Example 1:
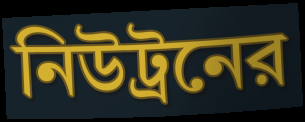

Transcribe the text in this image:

নিউট্রনের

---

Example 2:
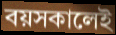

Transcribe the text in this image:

বয়সকালেই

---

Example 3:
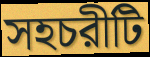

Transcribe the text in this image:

সহচরীটি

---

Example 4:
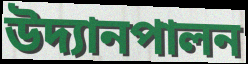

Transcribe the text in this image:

উদ্যানপালন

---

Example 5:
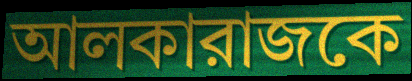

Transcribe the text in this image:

আলকারাজকে